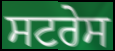
ਸਟਰੇਸ